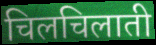
चिलचिलाती